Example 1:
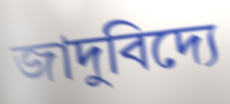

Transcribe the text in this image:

জাদুবিদ্যে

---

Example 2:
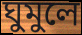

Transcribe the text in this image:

ঘুমুলে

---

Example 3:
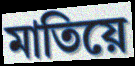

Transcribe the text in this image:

মাতিয়ে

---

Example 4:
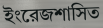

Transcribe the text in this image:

ইংরেজশাসিত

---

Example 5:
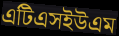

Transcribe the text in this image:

এটিএসইউএম